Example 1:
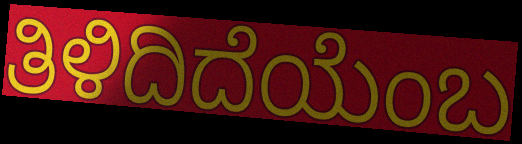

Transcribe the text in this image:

ತಿಳಿದಿದೆಯೆಂಬ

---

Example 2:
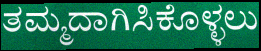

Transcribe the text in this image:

ತಮ್ಮದಾಗಿಸಿಕೊಳ್ಳಲು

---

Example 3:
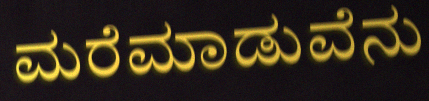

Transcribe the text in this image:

ಮರೆಮಾಡುವೆನು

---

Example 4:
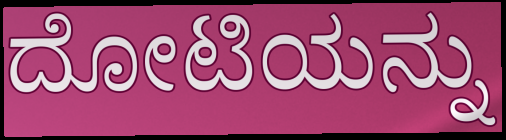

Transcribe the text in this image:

ದೋಟಿಯನ್ನು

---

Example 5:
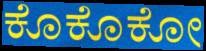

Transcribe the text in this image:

ಕೊಕೊಕೋ